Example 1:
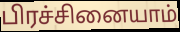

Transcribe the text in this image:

பிரச்சினையாம்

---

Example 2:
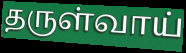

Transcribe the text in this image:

தருள்வாய்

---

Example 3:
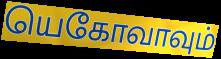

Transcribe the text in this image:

யெகோவாவும்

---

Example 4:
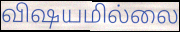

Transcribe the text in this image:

விஷயமில்லை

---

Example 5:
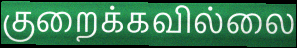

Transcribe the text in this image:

குறைக்கவில்லை